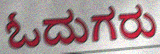
ಓದುಗರು